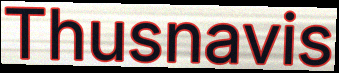
Thusnavis